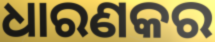
ଧାରଣକର